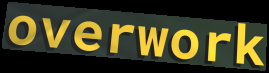
overwork